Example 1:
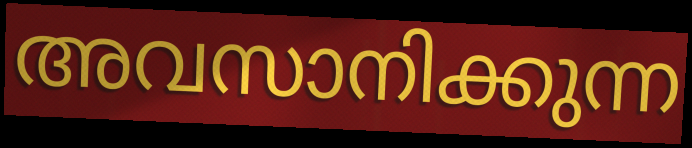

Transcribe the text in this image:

അവസാനിക്കുന്ന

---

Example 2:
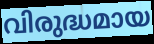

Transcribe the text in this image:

വിരുദ്ധമായ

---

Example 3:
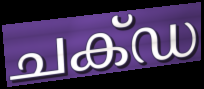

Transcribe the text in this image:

ചക്ഡ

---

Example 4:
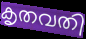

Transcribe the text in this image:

കൃതവതി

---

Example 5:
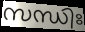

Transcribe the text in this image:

സന്ധിഃ